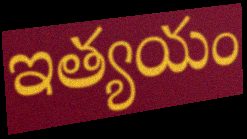
ఇత్యయం